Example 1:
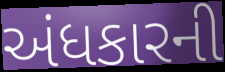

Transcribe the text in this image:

અંધકારની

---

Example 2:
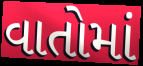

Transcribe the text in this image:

વાતોમાં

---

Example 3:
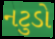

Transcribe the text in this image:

નટુડો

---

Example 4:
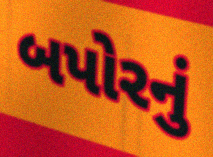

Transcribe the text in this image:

બપોરનું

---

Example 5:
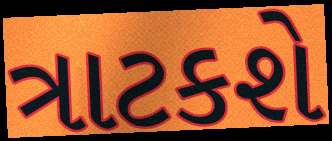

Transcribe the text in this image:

ત્રાટકશે